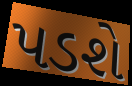
પડશે